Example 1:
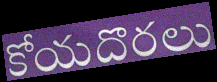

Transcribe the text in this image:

కోయదొరలు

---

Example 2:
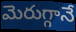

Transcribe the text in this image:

మెరుగ్గానే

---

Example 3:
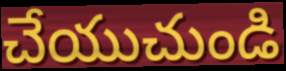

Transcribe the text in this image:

చేయుచుండి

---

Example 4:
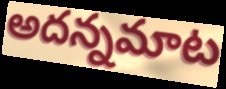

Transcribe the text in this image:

అదన్నమాట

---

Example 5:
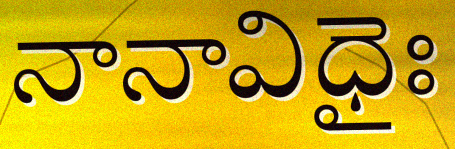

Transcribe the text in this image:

నానావిధైః